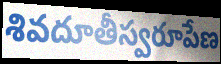
శివదూతీస్వరూపేణ